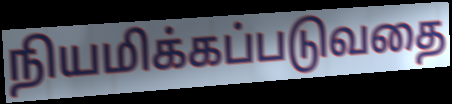
நியமிக்கப்படுவதை